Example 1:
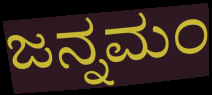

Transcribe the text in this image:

ಜನ್ನಮಂ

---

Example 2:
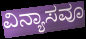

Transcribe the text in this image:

ವಿನ್ಯಾಸವೂ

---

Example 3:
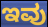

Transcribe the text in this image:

ಇವು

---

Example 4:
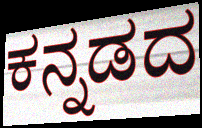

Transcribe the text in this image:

ಕನ್ನಡದ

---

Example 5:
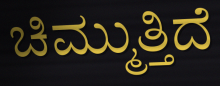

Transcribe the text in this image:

ಚಿಮ್ಮುತ್ತಿದೆ